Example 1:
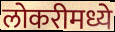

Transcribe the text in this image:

लोकरीमध्ये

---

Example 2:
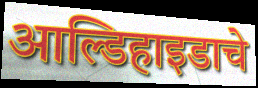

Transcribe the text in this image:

आल्डिहाइडाचे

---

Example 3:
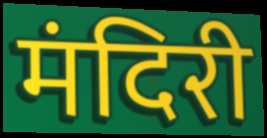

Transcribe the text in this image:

मंदिरी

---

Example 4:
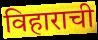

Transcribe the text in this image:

विहाराची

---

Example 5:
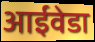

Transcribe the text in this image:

आईवेडा